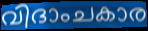
വിദാംചകാര